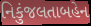
નિકુંજલતાબહેન